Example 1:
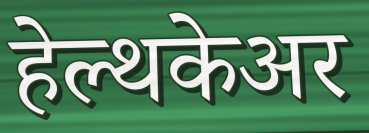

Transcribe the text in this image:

हेल्थकेअर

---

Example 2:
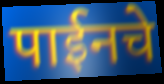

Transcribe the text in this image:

पाईनचे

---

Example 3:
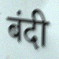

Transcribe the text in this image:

बंदी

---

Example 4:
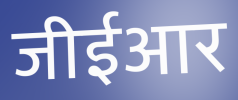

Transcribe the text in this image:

जीईआर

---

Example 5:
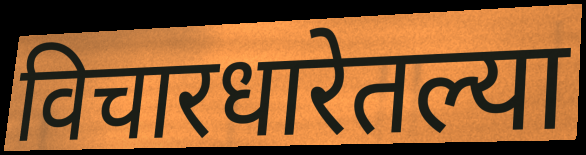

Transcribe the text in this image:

विचारधारेतल्या